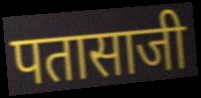
पतासाजी